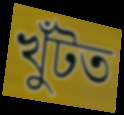
খুঁটত